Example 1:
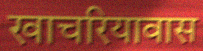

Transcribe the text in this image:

खाचरियावास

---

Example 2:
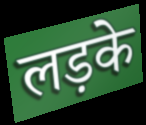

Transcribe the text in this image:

लड़के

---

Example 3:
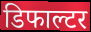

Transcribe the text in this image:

डिफाल्टर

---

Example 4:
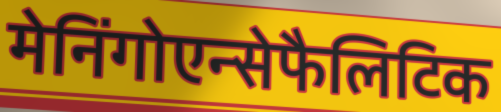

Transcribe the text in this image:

मेनिंगोएन्सेफैलिटिक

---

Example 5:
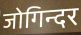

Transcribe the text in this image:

जोगिन्दर